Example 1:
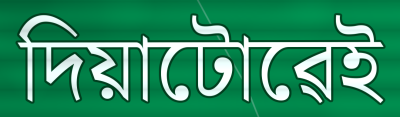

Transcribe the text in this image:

দিয়াটোৱেই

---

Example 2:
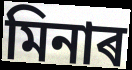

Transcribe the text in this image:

মিনাৰ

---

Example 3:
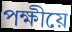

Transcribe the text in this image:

পক্ষীয়ে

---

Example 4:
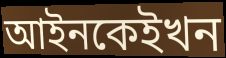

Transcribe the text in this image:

আইনকেইখন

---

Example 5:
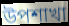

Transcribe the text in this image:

উপশাখা